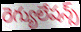
రెగ్యులేషన్స్